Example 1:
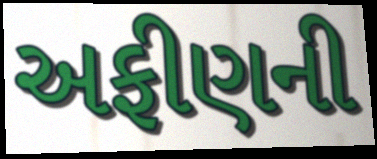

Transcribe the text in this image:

અફીણની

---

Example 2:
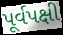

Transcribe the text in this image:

પૂર્વપક્ષી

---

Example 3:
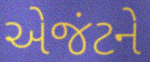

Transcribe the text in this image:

એજંટને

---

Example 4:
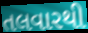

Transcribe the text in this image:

તલવારથી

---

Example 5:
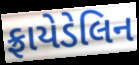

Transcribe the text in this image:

ફ્રાયેડેલિન